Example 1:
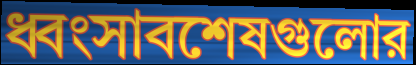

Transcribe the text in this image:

ধ্বংসাবশেষগুলোর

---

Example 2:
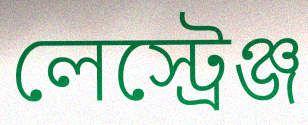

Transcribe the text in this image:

লেস্ট্রেঞ্জ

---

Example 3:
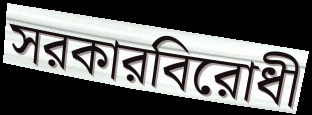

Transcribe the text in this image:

সরকারবিরোধী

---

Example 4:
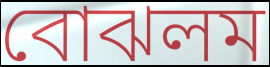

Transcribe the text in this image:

বোঝলম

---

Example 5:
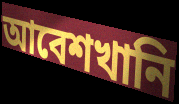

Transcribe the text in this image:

আবেশখানি